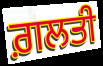
ਗ਼ਲਤੀ